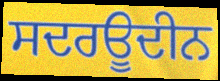
ਸਦਰਊਦੀਨ